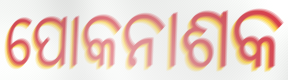
ପୋକନାଶକ